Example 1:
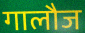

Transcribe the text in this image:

गालौज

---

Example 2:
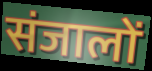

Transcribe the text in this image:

संजालों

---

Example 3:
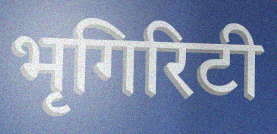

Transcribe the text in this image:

भृगिरिटी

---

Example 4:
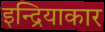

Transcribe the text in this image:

इन्द्रियाकार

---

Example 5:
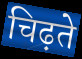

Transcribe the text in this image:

चिढ़ते